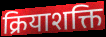
क्रियाशक्ति